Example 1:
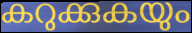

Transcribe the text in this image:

കറുക്കുകയും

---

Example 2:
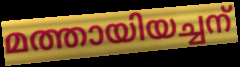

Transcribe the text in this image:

മത്തായിയച്ചന്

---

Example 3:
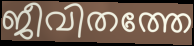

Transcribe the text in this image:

ജീവിതത്തേ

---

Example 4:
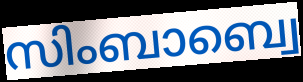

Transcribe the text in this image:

സിംബാബ്വെ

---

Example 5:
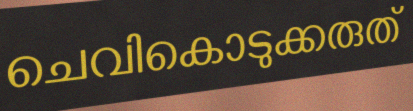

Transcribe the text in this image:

ചെവികൊടുക്കരുത്